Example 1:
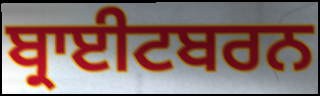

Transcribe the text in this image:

ਬ੍ਰਾਈਟਬਰਨ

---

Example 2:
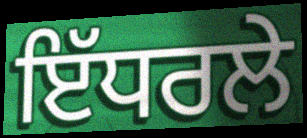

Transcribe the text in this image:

ਇੱਧਰਲੇ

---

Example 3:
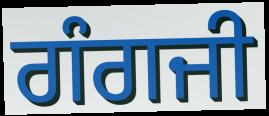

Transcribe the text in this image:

ਗੰਗਜੀ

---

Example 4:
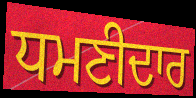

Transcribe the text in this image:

ਧਮਣੀਦਾਰ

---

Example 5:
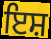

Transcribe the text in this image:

ਇਸ਼